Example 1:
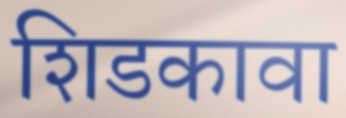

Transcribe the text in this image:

शिडकावा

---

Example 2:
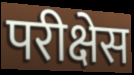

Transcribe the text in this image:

परीक्षेस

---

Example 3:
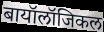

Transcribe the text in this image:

बायॉलॉजिकल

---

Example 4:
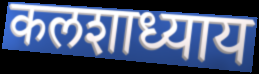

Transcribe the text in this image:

कलशाध्याय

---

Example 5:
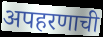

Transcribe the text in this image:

अपहरणाची